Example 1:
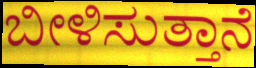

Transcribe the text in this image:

ಬೀಳಿಸುತ್ತಾನೆ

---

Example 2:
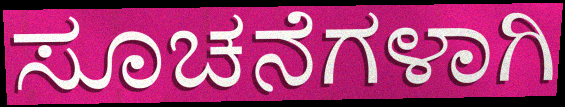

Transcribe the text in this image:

ಸೂಚನೆಗಳಾಗಿ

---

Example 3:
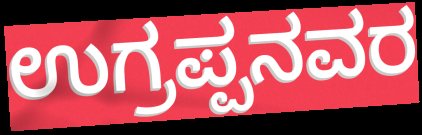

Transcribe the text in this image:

ಉಗ್ರಪ್ಪನವರ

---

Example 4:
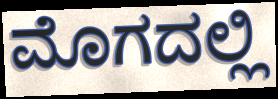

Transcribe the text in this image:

ಮೊಗದಲ್ಲಿ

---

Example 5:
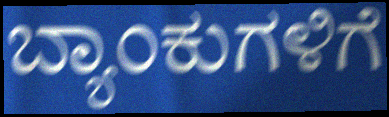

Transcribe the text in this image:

ಬ್ಯಾಂಕುಗಳಿಗೆ